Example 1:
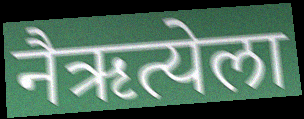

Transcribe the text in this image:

नैऋत्येला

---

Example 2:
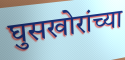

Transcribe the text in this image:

घुसखोरांच्या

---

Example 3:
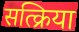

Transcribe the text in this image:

सत्क्रिया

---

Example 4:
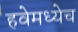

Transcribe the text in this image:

हवेमध्येच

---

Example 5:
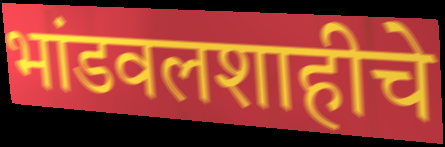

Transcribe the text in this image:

भांडवलशाहीचे